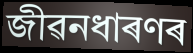
জীৱনধাৰণৰ